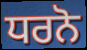
ਧਰਨੋ